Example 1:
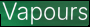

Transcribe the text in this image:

Vapours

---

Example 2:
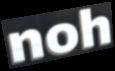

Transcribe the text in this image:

noh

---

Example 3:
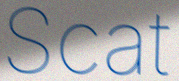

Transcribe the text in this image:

Scat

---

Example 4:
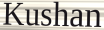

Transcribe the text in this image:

Kushan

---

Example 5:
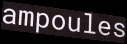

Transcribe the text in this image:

ampoules